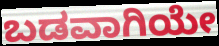
ಬಡವಾಗಿಯೇ